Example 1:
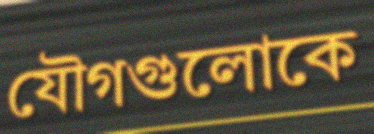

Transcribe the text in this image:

যৌগগুলোকে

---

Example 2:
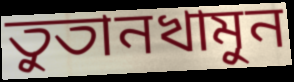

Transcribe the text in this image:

তুতানখামুন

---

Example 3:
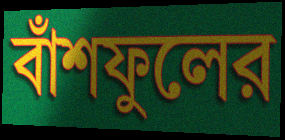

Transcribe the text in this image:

বাঁশফুলের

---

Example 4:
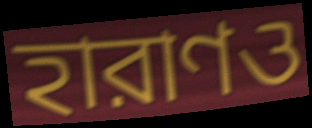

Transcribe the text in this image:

হারাণও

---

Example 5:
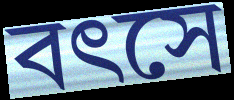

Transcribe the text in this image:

বৎসে